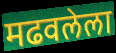
मढवलेला